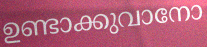
ഉണ്ടാക്കുവാനോ